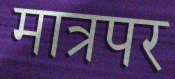
मात्रपर